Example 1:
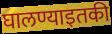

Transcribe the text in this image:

घालण्याइतकी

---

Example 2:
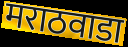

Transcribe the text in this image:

मराठवाडा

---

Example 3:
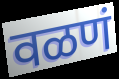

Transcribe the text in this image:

वळणं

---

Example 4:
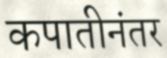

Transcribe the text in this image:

कपातीनंतर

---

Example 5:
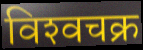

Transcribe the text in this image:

विश्वचक्र